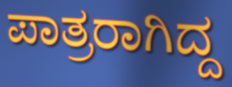
ಪಾತ್ರರಾಗಿದ್ದ